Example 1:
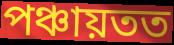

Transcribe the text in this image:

পঞ্চায়তত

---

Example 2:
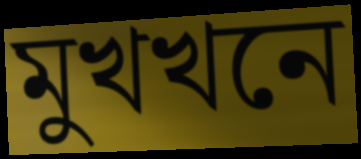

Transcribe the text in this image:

মুখখনে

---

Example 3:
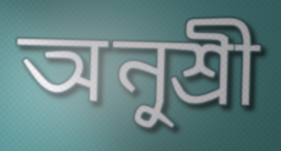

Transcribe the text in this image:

অনুশ্ৰী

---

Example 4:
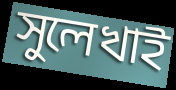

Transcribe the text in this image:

সুলেখাই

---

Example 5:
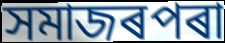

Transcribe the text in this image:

সমাজৰপৰা